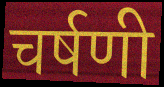
चर्षणी